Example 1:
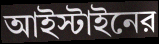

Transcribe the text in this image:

আইস্টাইনের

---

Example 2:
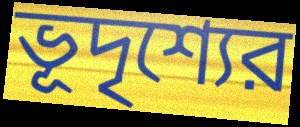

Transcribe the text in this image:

ভূদৃশ্যের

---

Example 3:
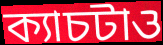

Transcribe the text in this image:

ক্যাচটাও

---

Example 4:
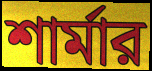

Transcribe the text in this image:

শার্মার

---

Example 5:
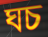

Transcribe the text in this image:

ঘচ